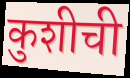
कुशीची